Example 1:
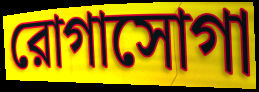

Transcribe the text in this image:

রোগাসোগা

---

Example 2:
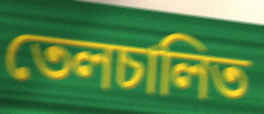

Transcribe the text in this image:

তেলচালিত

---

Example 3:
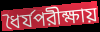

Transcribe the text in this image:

ধৈর্যপরীক্ষায়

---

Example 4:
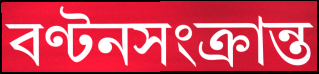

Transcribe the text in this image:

বণ্টনসংক্রান্ত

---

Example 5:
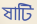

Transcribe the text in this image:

ষাটি